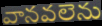
వానవలెను